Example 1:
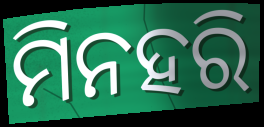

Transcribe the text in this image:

ମିନହରି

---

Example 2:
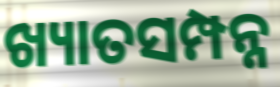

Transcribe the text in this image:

ଖ୍ୟାତସମ୍ପନ୍ନ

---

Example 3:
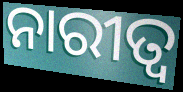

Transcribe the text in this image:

ନାରୀତ୍ୱ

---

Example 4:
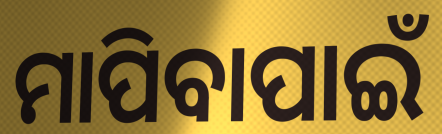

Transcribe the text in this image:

ମାପିବାପାଇଁ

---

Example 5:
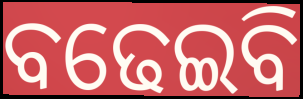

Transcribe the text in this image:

ବଢେଇବି